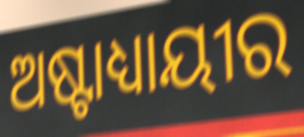
ଅଷ୍ଟାଧ୍ଯାୟୀର